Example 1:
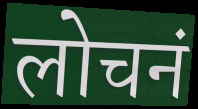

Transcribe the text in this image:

लोचनं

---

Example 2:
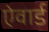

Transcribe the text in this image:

ऐवार्ड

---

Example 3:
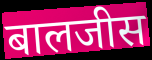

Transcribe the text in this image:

बालजीस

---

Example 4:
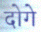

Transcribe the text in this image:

दोगे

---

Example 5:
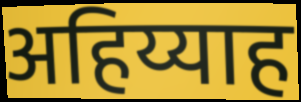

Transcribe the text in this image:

अहिय्याह